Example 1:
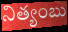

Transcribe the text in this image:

నిత్యంబు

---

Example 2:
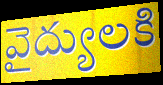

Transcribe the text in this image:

వైద్యులకి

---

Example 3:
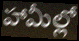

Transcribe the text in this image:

హామీల్లో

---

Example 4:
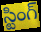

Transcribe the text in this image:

స్టింగ్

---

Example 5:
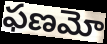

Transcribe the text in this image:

ఫణమో